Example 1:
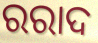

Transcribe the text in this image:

ରରାଦ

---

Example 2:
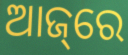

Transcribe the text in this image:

ଆଜ୍‌ରେ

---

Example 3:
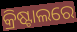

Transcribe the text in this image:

କ୍ରିଷ୍ଟାଲରେ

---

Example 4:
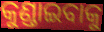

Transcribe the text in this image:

କୁଣ୍ଡାଇବାକୁ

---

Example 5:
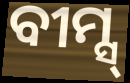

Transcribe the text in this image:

ବୀମ୍ସ୍